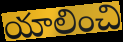
యాలించి